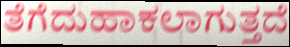
ತೆಗೆದುಹಾಕಲಾಗುತ್ತದೆ